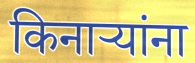
किनाऱ्यांना